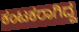
ಕಂಟಕರಾಗಿದ್ದ